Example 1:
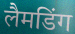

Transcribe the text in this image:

लैमडिंग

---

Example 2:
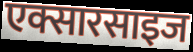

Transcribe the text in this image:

एक्सारसाइज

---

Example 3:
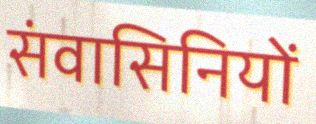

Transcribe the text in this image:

संवासिनियों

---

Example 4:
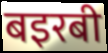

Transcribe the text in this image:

बइरबी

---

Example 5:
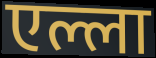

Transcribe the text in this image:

एल्ला